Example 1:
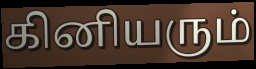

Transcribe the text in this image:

கினியரும்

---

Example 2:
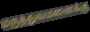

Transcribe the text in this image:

மருத்துவமனைக்கு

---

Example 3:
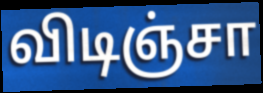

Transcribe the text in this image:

விடிஞ்சா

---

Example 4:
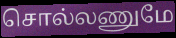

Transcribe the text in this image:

சொல்லணுமே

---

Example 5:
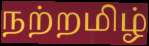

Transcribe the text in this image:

நற்றமிழ்